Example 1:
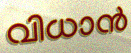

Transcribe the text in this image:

വിധാൻ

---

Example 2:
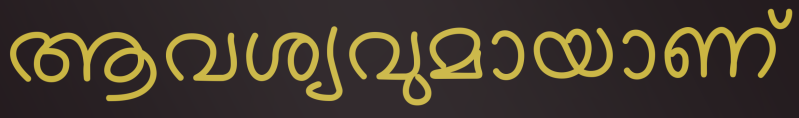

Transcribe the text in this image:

ആവശ്യവുമായാണ്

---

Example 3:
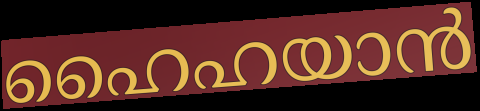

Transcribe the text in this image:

ഹൈഹയാൻ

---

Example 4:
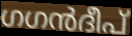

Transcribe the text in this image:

ഗഗൻദീപ്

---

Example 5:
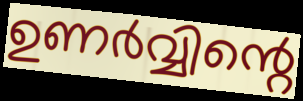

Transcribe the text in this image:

ഉണർവ്വിന്റെ